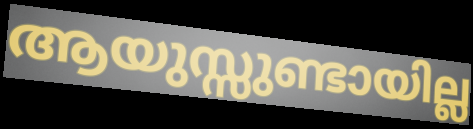
ആയുസ്സുണ്ടായില്ല